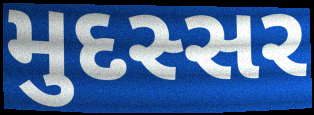
મુદસ્સર